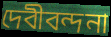
দেবীবন্দনা